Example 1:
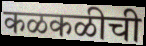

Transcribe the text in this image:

कळकळीची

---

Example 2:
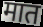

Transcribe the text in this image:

मात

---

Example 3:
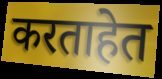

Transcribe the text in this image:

करताहेत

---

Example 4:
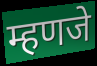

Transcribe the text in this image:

म्हणजे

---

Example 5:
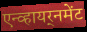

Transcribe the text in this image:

एन्व्हायर्नमेंट